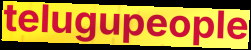
telugupeople